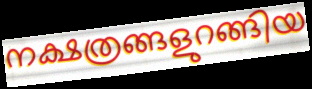
നക്ഷത്രങ്ങളുറങ്ങിയ